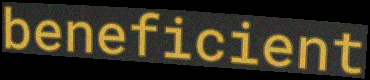
beneficient